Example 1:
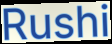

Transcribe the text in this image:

Rushi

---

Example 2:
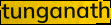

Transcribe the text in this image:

tunganath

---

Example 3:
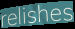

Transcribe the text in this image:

relishes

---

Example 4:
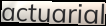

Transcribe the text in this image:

actuarial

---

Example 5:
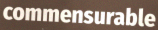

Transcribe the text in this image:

commensurable